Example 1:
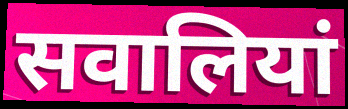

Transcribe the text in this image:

सवालियां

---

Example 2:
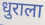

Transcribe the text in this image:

धुराला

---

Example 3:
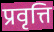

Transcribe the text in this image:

प्रवृत्ति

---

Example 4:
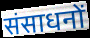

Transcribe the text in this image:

संसाधनों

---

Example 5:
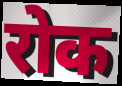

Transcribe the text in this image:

रोक